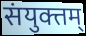
संयुक्तम्